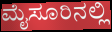
ಮೈಸೂರಿನಲ್ಲಿ